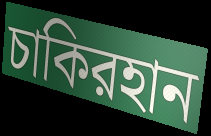
চাকিরহান